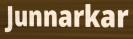
Junnarkar